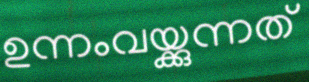
ഉന്നംവയ്ക്കുന്നത്